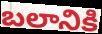
బలానికి